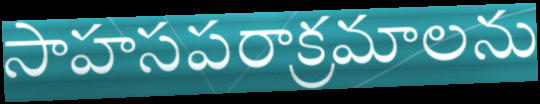
సాహసపరాక్రమాలను